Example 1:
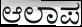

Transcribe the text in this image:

ಆಲಾಪ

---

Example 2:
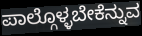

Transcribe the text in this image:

ಪಾಲ್ಗೊಳ್ಳಬೇಕೆನ್ನುವ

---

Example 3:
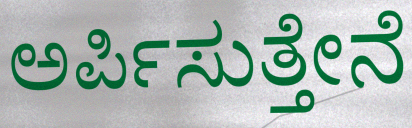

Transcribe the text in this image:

ಅರ್ಪಿಸುತ್ತೇನೆ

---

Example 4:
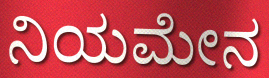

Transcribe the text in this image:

ನಿಯಮೇನ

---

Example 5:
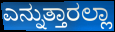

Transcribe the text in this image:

ಎನ್ನುತ್ತಾರಲ್ಲಾ